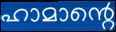
ഹാമാന്റെ